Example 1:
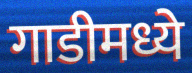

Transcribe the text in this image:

गाडीमध्ये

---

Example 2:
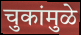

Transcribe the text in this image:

चुकांमुळे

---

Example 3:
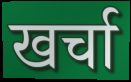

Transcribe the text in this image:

खर्चा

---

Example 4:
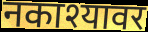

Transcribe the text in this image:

नकाश्यावर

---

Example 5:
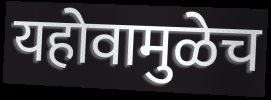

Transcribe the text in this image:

यहोवामुळेच